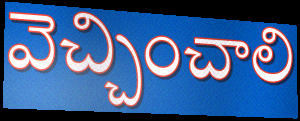
వెచ్చించాలి